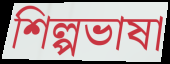
শিল্পভাষা